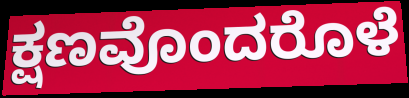
ಕ್ಷಣವೊಂದರೊಳೆ